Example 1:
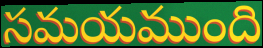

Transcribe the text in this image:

సమయముంది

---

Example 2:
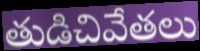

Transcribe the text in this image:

తుడిచివేతలు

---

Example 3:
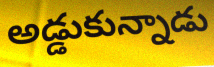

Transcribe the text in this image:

అడ్డుకున్నాడు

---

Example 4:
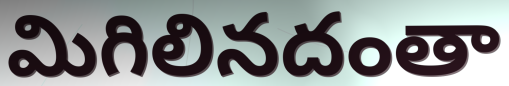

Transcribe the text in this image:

మిగిలినదంతా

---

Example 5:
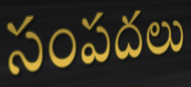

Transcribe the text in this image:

సంపదలు